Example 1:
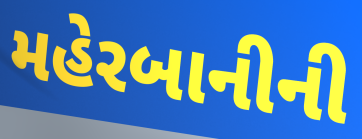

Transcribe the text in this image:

મહેરબાનીની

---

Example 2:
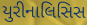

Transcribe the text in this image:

યુરીનાલિસિસ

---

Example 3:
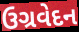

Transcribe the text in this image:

ઉગ્રવેદન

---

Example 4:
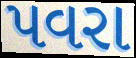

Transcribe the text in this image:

પવરા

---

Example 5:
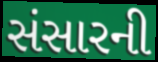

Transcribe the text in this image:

સંસારની